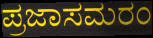
ಪ್ರಜಾಸಮರಂ